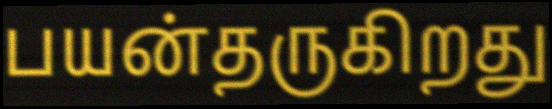
பயன்தருகிறது